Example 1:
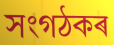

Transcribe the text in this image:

সংগঠকৰ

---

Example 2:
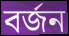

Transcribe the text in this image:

বৰ্জন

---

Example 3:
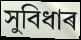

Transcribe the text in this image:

সুবিধাৰ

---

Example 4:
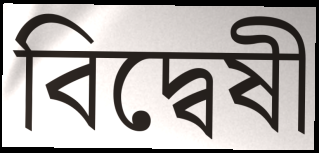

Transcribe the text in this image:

বিদ্বেষী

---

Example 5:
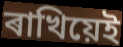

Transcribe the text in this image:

ৰাখিয়েই